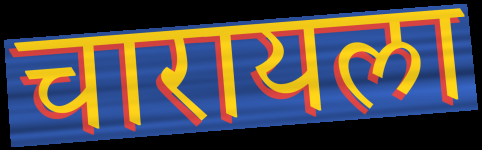
चारायला